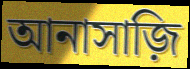
আনাসাজ়ি